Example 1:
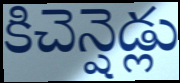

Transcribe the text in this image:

కిచెన్షెడ్లు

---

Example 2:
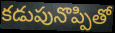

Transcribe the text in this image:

కడుపునొప్పితో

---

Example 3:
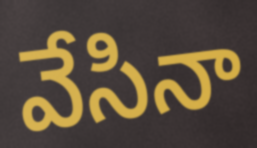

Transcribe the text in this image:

వేసినా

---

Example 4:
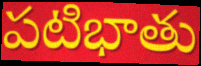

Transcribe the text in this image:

పటిభాతు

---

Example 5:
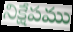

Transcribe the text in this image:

నిక్షేపము